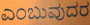
ಎಂಬುವುದರ